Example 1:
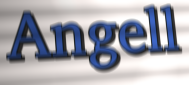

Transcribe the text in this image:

Angell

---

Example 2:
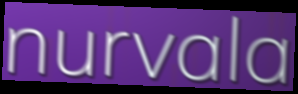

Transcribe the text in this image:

nurvala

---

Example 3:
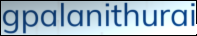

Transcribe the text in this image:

gpalanithurai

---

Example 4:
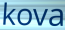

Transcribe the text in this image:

kova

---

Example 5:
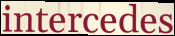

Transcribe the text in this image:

intercedes